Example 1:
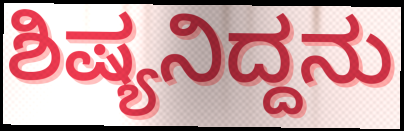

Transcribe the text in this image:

ಶಿಷ್ಯನಿದ್ದನು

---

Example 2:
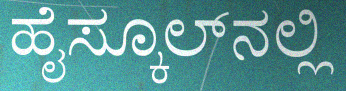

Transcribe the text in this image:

ಹೈಸ್ಕೂಲ್‍ನಲ್ಲಿ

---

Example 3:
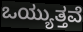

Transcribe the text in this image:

ಒಯ್ಯುತ್ತವೆ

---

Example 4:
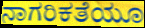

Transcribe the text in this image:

ನಾಗರಿಕತೆಯೂ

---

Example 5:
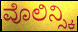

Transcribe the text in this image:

ವೊಲಿನ್ಸ್ಕಿ